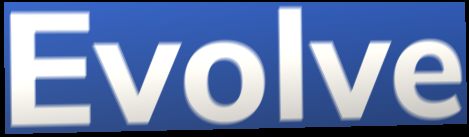
Evolve